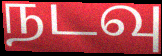
நடவு